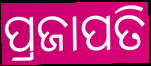
ପ୍ରଜାପତି